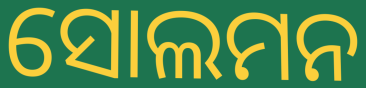
ସୋଲମନ